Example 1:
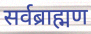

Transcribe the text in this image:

सर्वब्राह्मण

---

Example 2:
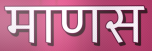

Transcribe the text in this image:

माणस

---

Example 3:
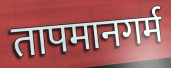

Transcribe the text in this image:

तापमानगर्म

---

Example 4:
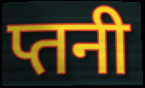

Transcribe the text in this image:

प्तनी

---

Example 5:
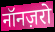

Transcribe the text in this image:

नॉनज़रो